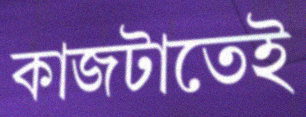
কাজটাতেই